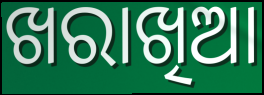
ଖରାଖିଆ